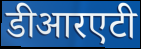
डीआरएटी